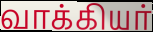
வாக்கியர்